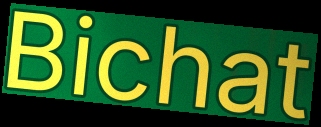
Bichat